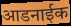
आडनाईक